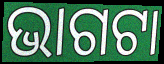
ଭାଗଟା